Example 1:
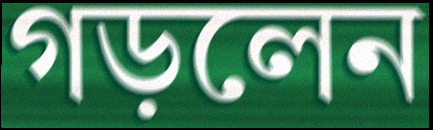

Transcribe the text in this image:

গড়লেন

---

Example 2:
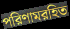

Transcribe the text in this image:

পরিণামরহিত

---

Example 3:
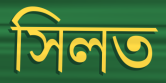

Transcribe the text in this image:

সিলত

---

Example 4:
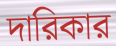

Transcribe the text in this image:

দারিকার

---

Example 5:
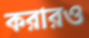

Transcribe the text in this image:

করারও